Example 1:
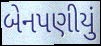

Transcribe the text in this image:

બેનપણીયું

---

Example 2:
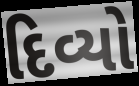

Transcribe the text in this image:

દિવ્યો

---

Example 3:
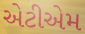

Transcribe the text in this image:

એટીએમ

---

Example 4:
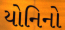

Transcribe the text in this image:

યોનિનો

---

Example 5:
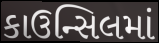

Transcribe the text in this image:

કાઉન્સિલમાં